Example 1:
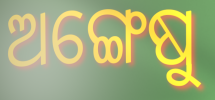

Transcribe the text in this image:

ଅଙ୍ଗେଷୁ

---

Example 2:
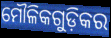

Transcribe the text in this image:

ମୌଳିକଗୁଡ଼ିକର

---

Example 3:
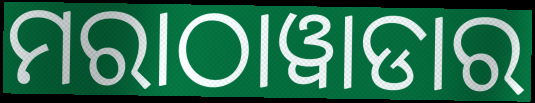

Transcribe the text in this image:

ମରାଠାୱାଡାର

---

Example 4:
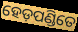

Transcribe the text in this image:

ହେଡ଼ପଣ୍ଡିତେ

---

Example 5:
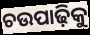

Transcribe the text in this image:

ଚଉପାଢ଼ିକୁ